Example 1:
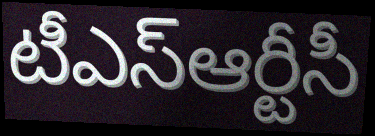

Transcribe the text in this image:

టీఎస్ఆర్టీసీ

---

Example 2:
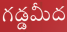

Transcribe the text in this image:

గడ్డమీద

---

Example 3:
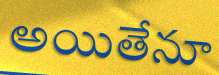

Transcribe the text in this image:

అయితేనూ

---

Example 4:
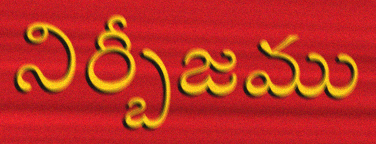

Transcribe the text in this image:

నిర్బీజము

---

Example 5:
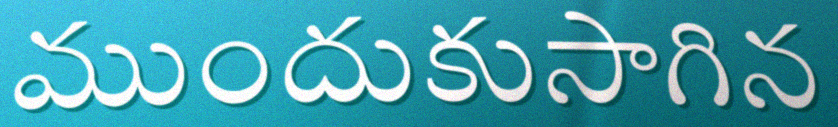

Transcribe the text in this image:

ముందుకుసాగిన